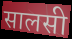
सालसी